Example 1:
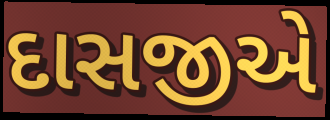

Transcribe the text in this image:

દાસજીએ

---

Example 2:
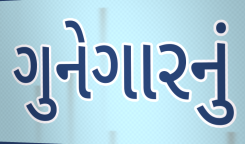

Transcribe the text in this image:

ગુનેગારનું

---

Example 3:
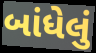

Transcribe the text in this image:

બાંધેલું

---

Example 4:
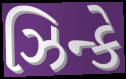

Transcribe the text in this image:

ઝિન્કે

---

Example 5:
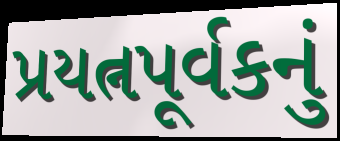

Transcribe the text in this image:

પ્રયત્નપૂર્વકનું